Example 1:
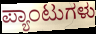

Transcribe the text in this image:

ಪ್ಯಾಂಟುಗಳು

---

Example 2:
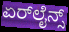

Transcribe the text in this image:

ಏರ್‌ಲೈನ್ಸ್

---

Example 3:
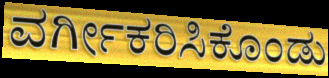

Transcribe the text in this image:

ವರ್ಗೀಕರಿಸಿಕೊಂಡು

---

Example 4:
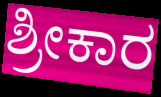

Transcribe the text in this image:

ಶ್ರೀಕಾರ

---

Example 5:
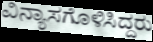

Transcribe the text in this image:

ವಿನ್ಯಾಸಗೊಳಿಸಿದ್ದರು